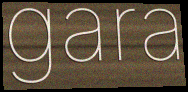
gara